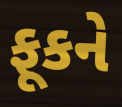
ફૂકને